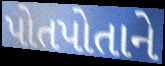
પોતપોતાને